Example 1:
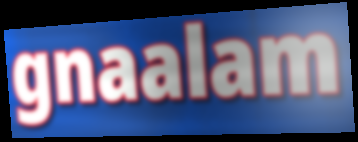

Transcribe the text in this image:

gnaalam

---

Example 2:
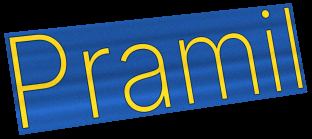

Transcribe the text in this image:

Pramil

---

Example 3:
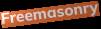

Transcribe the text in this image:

Freemasonry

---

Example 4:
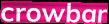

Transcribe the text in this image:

crowbar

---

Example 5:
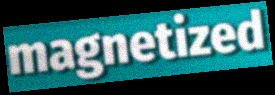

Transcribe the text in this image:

magnetized